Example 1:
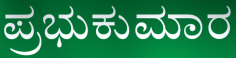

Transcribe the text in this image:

ಪ್ರಭುಕುಮಾರ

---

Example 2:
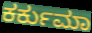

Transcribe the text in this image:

ಕರ್ಕುಮಾ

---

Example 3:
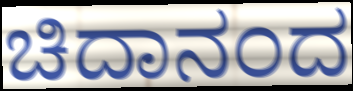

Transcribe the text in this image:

ಚಿದಾನಂದ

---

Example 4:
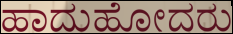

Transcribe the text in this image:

ಹಾದುಹೋದರು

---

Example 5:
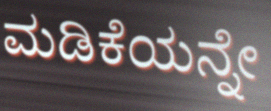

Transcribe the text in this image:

ಮಡಿಕೆಯನ್ನೇ